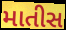
માતીસ